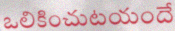
ఒలికించుటయందే